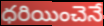
ధరియించెనే